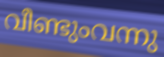
വീണ്ടുംവന്നു